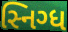
સ્નિગ્ધ